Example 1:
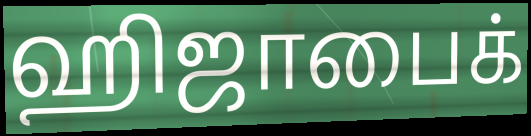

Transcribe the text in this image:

ஹிஜாபைக்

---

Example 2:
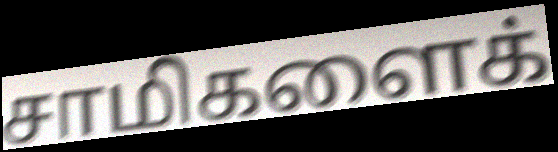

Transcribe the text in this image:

சாமிகளைக்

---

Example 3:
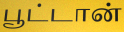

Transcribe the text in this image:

பூட்டான்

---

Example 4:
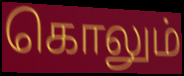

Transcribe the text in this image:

கொலும்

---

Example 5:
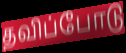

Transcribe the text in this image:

தவிப்போடு